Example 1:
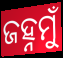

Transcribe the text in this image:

ଜହ୍ନମୁଁ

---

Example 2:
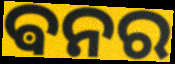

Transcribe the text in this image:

ଵନର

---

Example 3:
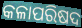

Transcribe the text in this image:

କଳାପରିଷଦ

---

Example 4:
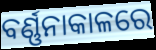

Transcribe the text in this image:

ବର୍ଣ୍ଣନାକାଳରେ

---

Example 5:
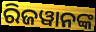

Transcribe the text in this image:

ରିଜୱାନଙ୍କ